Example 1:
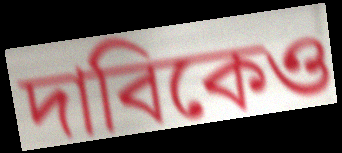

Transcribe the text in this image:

দাবিকেও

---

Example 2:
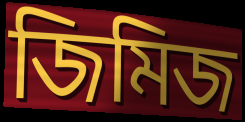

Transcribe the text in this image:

জিমিজ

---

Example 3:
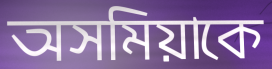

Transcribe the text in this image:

অসমিয়াকে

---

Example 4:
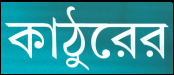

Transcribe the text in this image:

কাঠুরের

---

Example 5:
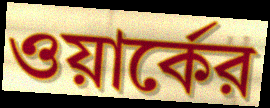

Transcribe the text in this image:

ওয়ার্কের